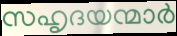
സഹൃദയന്മാർ